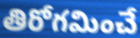
తిరోగమించే